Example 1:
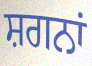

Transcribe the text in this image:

ਸ਼ਗਨਾਂ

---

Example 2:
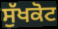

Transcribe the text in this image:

ਸੁੱਖਕੋਟ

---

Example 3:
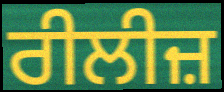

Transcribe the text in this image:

ਰੀਲੀਜ਼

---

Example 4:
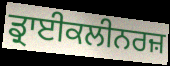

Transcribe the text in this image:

ਡ੍ਰਾਈਕਲੀਨਰਜ਼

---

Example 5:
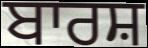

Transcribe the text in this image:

ਬਾਰਸ਼